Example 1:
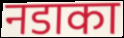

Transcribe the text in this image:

नडाका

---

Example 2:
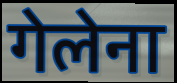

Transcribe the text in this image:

गेलेना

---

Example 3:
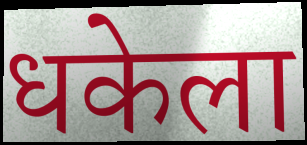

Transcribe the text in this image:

धकेला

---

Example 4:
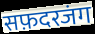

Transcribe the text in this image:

सफ़दरजंग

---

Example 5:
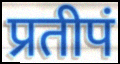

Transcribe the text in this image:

प्रतीपं